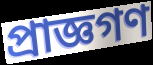
প্রাজ্ঞগণ